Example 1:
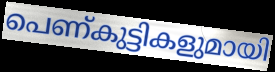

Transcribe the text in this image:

പെണ്കുട്ടികളുമായി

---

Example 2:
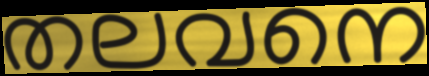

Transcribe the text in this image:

തലവനെ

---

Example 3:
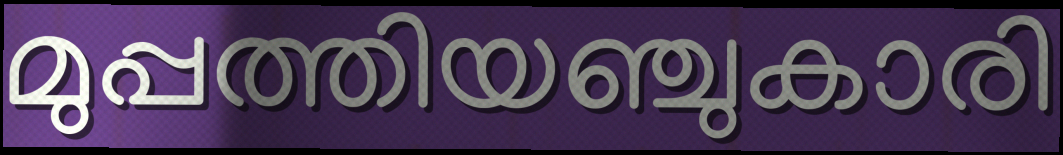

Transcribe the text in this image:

മുപ്പത്തിയഞ്ചുകാരി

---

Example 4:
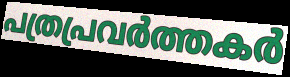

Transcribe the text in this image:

പത്രപ്രവർത്തകർ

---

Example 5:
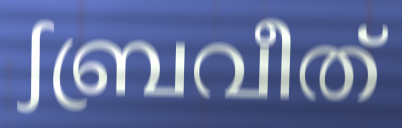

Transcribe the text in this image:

ഽബ്രവീത്